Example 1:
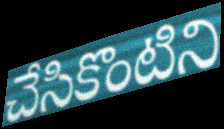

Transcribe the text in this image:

చేసికొంటిని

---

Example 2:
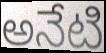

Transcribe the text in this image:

అనేటి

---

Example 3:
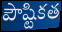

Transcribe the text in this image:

పౌష్టికత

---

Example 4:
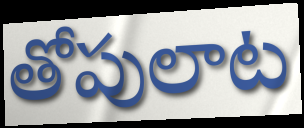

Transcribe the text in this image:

తోపులాట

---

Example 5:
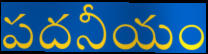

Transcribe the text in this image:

పదనీయం